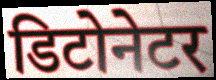
डिटोनेटर